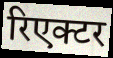
रिएक्टर